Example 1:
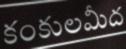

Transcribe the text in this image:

కంకులమీద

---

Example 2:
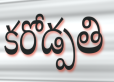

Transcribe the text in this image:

కరోడ్పతి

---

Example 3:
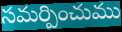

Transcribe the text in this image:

సమర్పించుము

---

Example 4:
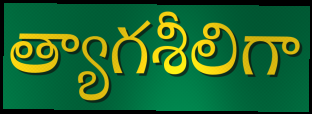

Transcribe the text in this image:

త్యాగశీలిగా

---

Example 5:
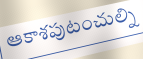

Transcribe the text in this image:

ఆకాశపుటంచుల్ని